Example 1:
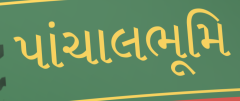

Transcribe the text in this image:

પાંચાલભૂમિ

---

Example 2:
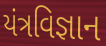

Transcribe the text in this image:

યંત્રવિજ્ઞાન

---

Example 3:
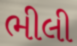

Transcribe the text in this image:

ભીલી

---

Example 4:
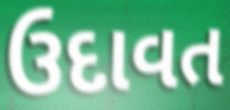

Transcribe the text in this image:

ઉદાવત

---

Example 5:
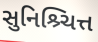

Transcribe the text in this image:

સુનિશ્ર્ચિત્ત